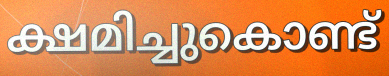
ക്ഷമിച്ചുകൊണ്ട്